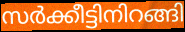
സർക്കീട്ടിനിറങ്ങി